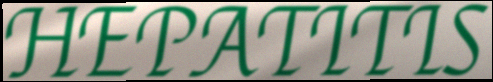
HEPATITIS